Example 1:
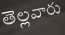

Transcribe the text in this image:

తెల్లవారు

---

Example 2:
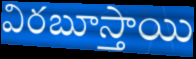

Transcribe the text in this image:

విరబూస్తాయి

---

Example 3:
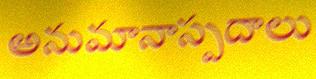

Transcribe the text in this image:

అనుమానాస్పదాలు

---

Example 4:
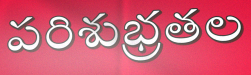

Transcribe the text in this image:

పరిశుభ్రతల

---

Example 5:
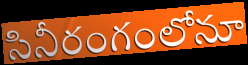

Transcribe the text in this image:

సినీరంగంలోనూ